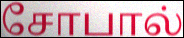
சோபால்